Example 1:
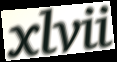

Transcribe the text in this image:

xlvii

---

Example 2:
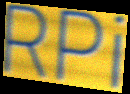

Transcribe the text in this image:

RPi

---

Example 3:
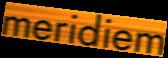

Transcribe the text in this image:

meridiem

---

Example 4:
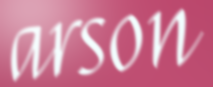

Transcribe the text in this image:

arson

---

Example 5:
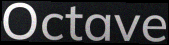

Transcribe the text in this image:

Octave